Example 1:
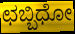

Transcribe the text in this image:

ಛಬ್ಬಿಧೋ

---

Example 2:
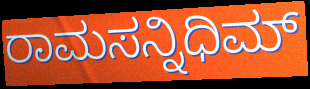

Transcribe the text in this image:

ರಾಮಸನ್ನಿಧಿಮ್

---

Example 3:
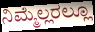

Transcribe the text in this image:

ನಿಮ್ಮೆಲ್ಲರಲ್ಲೂ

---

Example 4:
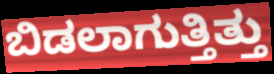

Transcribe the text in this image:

ಬಿಡಲಾಗುತ್ತಿತ್ತು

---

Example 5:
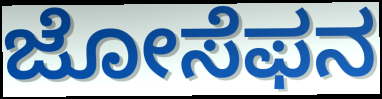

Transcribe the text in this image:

ಜೋಸೆಫನ